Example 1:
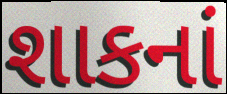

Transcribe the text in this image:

શાકનાં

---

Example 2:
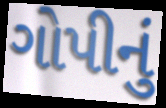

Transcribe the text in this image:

ગોપીનું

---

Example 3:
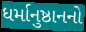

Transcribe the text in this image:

ધર્માનુષ્ઠાનનો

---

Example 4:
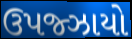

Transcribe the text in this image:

ઉપજ્ઝાયો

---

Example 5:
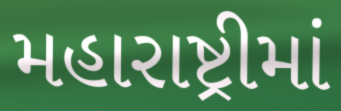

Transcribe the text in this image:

મહારાષ્ટ્રીમાં